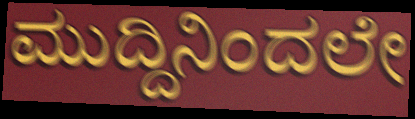
ಮುದ್ದಿನಿಂದಲೇ